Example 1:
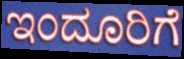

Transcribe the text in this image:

ಇಂದೂರಿಗೆ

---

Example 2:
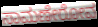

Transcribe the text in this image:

ಸಾಮಣೇರೋವ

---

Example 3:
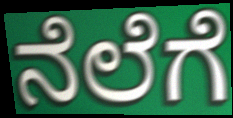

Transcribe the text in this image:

ನೆಲೆಗೆ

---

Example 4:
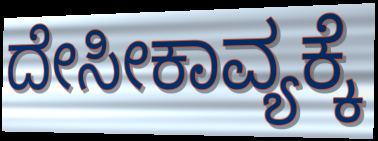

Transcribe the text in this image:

ದೇಸೀಕಾವ್ಯಕ್ಕೆ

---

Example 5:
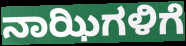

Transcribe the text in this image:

ನಾಝಿಗಳಿಗೆ